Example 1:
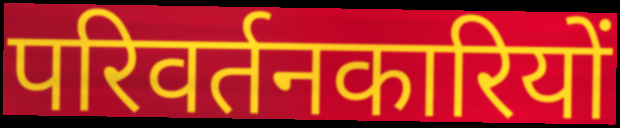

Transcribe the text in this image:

परिवर्तनकारियों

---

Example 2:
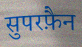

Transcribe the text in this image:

सुपरफ़ैन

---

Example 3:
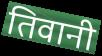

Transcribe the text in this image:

तिवानी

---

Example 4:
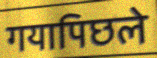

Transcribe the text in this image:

गयापिछले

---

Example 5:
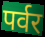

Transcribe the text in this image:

पर्वर